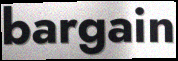
bargain